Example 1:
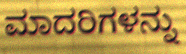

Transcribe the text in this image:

ಮಾದರಿಗಳನ್ನು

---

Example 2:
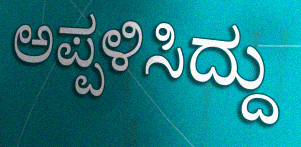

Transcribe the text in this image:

ಅಪ್ಪಳಿಸಿದ್ದು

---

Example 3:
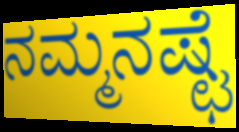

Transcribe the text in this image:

ನಮ್ಮನಷ್ಟೆ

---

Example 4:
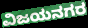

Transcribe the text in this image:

ವಿಜಯನಗರ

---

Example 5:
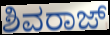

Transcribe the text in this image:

ಶಿವರಾಜ್